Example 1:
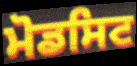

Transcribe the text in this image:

ਮੋਡਸਿਟ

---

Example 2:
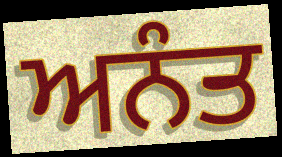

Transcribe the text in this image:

ਅਨੰਤ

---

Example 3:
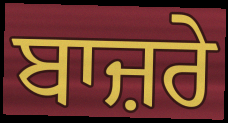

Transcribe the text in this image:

ਬਾਜ਼ਰੇ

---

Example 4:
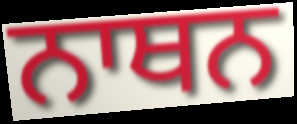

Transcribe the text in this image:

ਨਾਥਨ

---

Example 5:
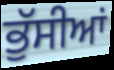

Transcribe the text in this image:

ਭੁੱਸੀਆਂ